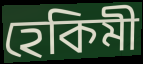
হেকিমী